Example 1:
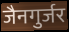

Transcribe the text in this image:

जैनगुर्जर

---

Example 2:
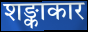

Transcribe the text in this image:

शङ्काकार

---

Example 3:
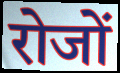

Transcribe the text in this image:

रोजों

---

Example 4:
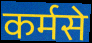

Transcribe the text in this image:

कर्मसे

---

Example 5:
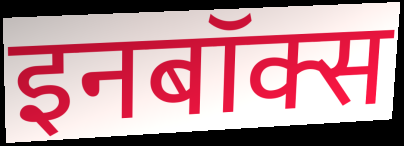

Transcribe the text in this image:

इनबॉक्स